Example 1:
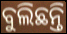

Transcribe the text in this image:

ବୁଲିଛନ୍ତି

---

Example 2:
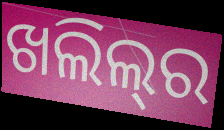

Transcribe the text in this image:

ଖଲିଲ୍‍ର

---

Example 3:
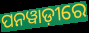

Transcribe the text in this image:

ପନୱାଡ଼ୀରେ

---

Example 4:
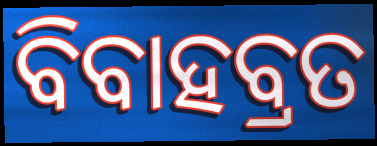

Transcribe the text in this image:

ବିବାହବ୍ରତ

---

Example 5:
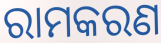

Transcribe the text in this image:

ରାମକରଣ